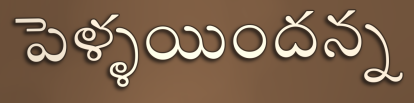
పెళ్ళయిందన్న